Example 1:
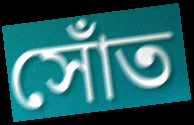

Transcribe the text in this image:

সোঁত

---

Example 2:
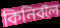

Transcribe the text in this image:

কিনিবলৈ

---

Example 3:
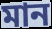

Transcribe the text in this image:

মান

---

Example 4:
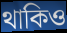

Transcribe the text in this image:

থাকিও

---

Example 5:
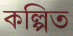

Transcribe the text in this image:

কল্পিত